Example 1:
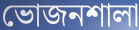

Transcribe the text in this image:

ভোজনশালা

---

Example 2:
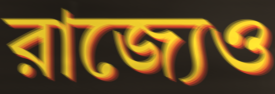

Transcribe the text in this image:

রাজ্যেও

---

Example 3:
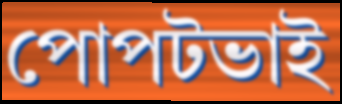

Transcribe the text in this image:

পোপটভাই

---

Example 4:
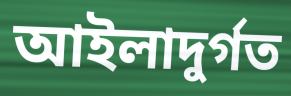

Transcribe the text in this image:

আইলাদুর্গত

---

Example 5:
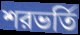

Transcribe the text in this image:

শরভর্তি